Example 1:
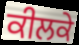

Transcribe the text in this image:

ਕੀਲਕੇ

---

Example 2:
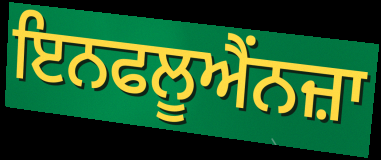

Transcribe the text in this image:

ਇਨਫਲੂਐਂਨਜ਼ਾ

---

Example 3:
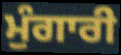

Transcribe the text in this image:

ਮੁੰਗਾਰੀ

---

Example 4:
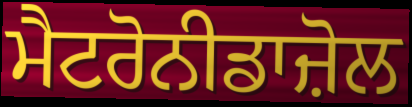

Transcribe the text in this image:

ਮੈਟਰੋਨੀਡਾਜ਼ੋਲ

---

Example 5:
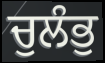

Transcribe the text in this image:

ਚੁਲੰਭੁ